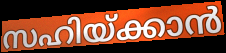
സഹിയ്ക്കാൻ